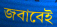
জবাবেই